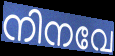
നിനവേ